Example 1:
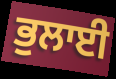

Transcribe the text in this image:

ਭੁਲਾਈ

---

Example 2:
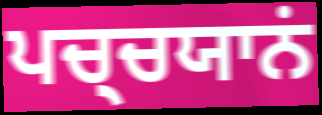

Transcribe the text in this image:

ਪਚ੍ਚਯਾਨਂ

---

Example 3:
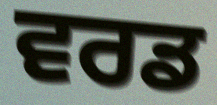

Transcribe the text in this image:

ਵਰਡ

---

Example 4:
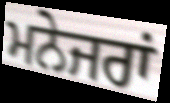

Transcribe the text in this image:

ਮਨੇਜਰਾਂ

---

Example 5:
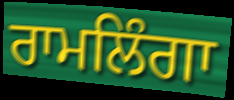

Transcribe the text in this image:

ਰਾਮਲਿੰਗਾ